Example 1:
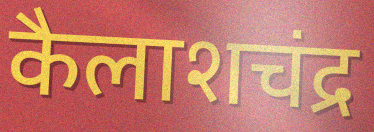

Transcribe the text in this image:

कैलाशचंद्र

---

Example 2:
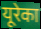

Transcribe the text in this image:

यूरेका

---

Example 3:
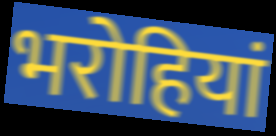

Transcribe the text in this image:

भरोहियां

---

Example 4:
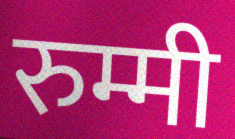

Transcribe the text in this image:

रुम्मी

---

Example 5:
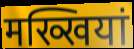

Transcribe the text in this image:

मख्खियां